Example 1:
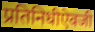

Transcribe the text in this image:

प्रतिनिधीऐवजी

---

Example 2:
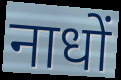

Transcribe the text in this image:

नाधों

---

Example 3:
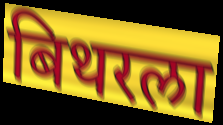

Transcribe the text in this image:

बिथरला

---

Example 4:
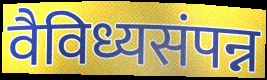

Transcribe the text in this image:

वैविध्यसंपन्न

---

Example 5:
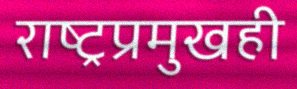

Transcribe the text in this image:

राष्ट्रप्रमुखही